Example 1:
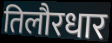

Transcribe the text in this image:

तिलौरधार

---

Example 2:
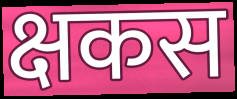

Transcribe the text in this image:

क्षकस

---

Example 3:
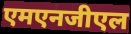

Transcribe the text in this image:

एमएनजीएल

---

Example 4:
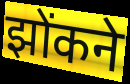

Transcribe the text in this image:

झोंकने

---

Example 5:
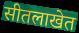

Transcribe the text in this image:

सीतलाखेत